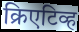
क्रिएटिव्ह